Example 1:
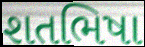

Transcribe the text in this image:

શતભિષા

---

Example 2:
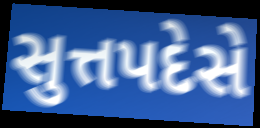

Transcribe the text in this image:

સુત્તપદેસે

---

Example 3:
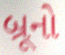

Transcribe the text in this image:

બ્રૂનો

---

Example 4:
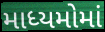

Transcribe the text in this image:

માધ્યમોમાં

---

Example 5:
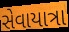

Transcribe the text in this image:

સેવાયાત્રા